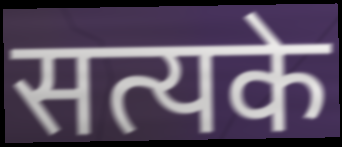
सत्यके